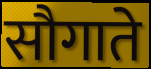
सौगाते